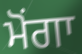
ਮੋਂਗਾ